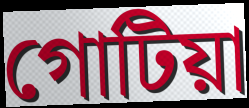
গোটিয়া